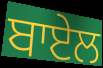
ਬਾਏਲ